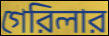
গেরিলার